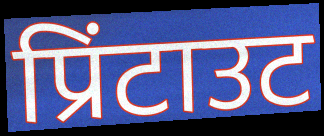
प्रिंटाउट